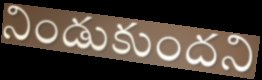
నిండుకుందని